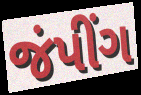
જંપીંગ